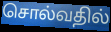
சொல்வதில்